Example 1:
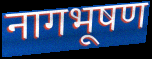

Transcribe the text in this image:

नागभूषण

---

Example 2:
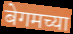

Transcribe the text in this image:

बेगमच्या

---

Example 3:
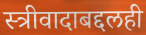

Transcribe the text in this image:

स्त्रीवादाबद्दलही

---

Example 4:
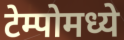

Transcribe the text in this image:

टेम्पोमध्ये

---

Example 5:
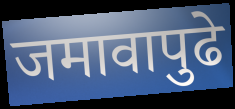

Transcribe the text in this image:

जमावापुढे